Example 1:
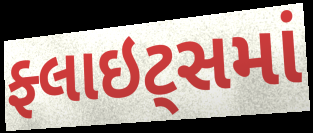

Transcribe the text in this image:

ફ્લાઇટ્સમાં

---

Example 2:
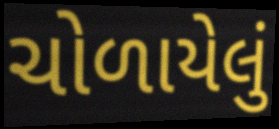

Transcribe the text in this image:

ચોળાયેલું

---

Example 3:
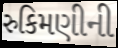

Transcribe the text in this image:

રુકિમણીની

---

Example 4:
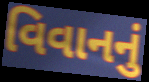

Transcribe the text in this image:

વિવાનનું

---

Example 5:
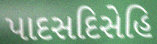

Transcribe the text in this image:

પાદસદિસેહિ